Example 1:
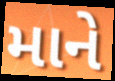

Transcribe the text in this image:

માને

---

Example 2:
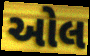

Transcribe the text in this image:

ઓલ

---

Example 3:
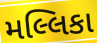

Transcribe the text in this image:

મલ્લિકા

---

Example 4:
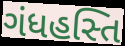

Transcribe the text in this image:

ગંધહસ્તિ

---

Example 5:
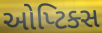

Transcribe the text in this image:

ઓપ્ટિક્સ